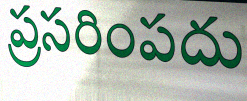
ప్రసరింపదు